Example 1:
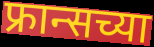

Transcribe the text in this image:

फ्रान्सच्या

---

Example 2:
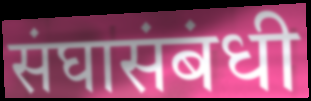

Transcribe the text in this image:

संघासंबंधी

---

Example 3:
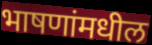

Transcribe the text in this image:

भाषणांमधील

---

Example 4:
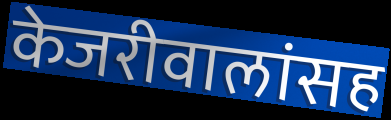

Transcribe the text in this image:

केजरीवालांसह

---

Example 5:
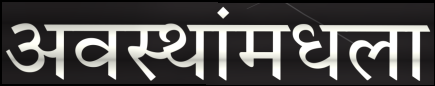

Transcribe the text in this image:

अवस्थांमधला